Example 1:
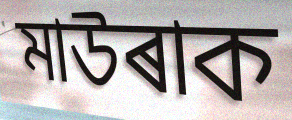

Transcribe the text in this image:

মাউৰাক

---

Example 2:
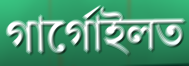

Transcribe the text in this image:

গাৰ্গোইলত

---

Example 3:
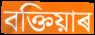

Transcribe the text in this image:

বক্তিয়াৰ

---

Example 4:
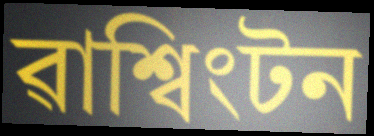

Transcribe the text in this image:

ৱাশ্বিংটন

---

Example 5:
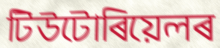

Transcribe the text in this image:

টিউটোৰিয়েলৰ